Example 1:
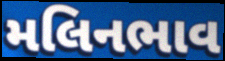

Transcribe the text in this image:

મલિનભાવ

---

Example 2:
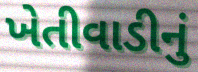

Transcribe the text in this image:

ખેતીવાડીનું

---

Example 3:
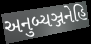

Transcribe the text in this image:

અનુબ્યઞ્જનેહિ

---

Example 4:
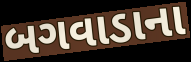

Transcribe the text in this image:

બગવાડાના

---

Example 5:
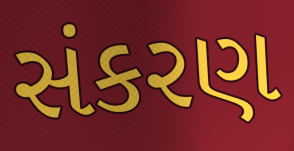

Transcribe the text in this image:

સંકરણ